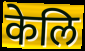
केलि